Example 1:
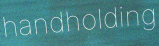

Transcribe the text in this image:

handholding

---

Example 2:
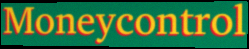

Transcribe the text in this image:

Moneycontrol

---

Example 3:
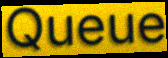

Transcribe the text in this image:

Queue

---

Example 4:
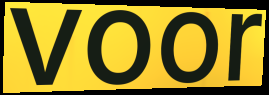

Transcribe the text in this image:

voor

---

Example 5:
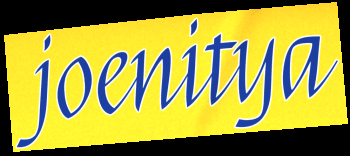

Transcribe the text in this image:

joenitya